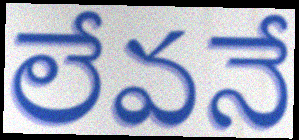
లేవనే